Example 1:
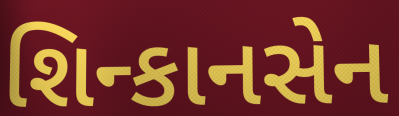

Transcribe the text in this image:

શિન્કાનસેન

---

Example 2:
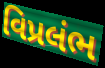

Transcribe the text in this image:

વિપ્રલંભ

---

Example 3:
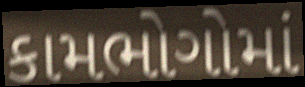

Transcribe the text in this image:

કામભોગોમાં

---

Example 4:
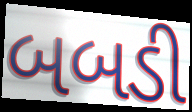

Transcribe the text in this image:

બબડી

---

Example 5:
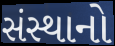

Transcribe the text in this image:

સંસ્થાનો